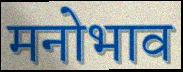
मनोभाव